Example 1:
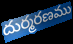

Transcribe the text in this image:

దుర్మరణము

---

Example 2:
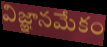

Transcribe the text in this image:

విజ్ఞానమేకం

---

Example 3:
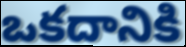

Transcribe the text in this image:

ఒకదానికి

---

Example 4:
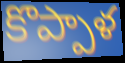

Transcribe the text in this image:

కొప్పాళ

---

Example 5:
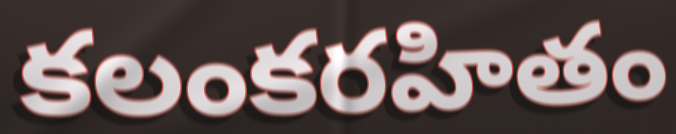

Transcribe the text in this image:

కలంకరహితం